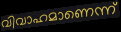
വിവാഹമാണെന്ന്